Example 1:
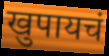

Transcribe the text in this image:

खुपायचं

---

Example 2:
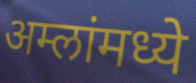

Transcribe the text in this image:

अम्लांमध्ये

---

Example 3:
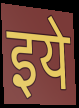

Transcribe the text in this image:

इये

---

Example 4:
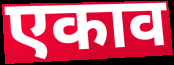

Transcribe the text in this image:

एकाव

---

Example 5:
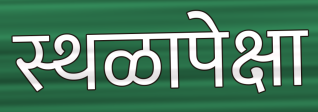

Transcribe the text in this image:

स्थळापेक्षा